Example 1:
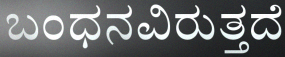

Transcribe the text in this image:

ಬಂಧನವಿರುತ್ತದೆ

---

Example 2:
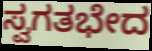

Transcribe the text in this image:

ಸ್ವಗತಭೇದ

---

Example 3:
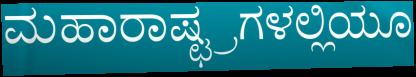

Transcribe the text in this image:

ಮಹಾರಾಷ್ಟ್ರಗಳಲ್ಲಿಯೂ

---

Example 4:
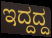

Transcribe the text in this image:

ಇದ್ದದ್ದ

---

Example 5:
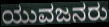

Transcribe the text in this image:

ಯುವಜನರು